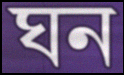
ঘন